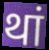
थां